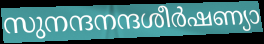
സുനന്ദനന്ദശീർഷണ്യാ